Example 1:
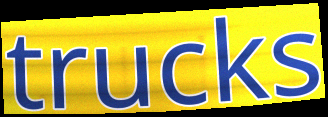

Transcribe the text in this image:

trucks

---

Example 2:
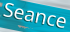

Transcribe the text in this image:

Seance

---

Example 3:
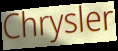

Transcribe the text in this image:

Chrysler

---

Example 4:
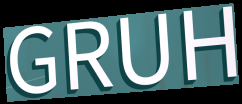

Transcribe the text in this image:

GRUH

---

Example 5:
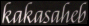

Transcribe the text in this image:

kakasaheb